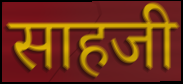
साहजी